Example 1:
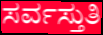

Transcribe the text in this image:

ಸರ್ವಸ್ತುತಿ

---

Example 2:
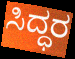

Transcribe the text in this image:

ಸಿದ್ಧರ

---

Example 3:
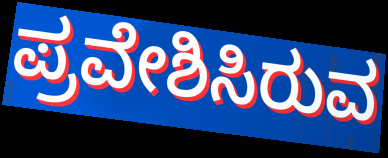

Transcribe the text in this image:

ಪ್ರವೇಶಿಸಿರುವ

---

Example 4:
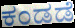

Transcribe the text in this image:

ಕಂಡಡೆ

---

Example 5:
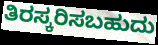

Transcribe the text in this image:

ತಿರಸ್ಕರಿಸಬಹುದು